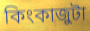
কিংকাজুটা